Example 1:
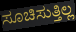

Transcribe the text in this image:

ಸೂಚಿಸುತ್ತಿಲ್ಲ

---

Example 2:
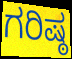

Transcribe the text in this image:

ಗರಿಷ್ಠ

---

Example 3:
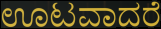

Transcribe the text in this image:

ಊಟವಾದರೆ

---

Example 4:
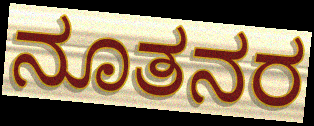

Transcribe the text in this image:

ನೂತನರ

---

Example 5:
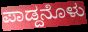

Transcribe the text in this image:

ಪಾಡ್ದನೊಳು